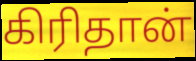
கிரிதான்